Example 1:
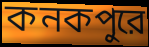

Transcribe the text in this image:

কনকপুরে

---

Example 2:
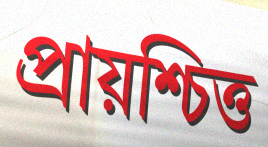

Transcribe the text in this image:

প্রায়শ্চিত্ত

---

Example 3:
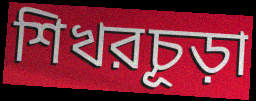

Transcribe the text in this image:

শিখরচূড়া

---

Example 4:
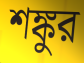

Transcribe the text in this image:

শঙ্কুর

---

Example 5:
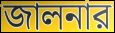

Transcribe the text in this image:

জালনার